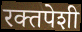
रक्तपेशी